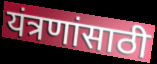
यंत्रणांसाठी